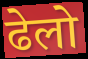
ढेलो